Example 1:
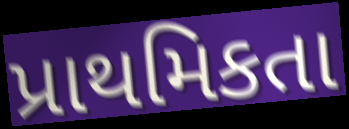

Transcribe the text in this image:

પ્રાથમિકતા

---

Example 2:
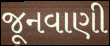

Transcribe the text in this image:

જૂનવાણી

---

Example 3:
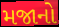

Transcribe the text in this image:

મજાનો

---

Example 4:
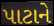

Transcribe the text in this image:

પાટાને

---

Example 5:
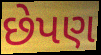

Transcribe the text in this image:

છેપણ